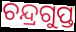
ଚନ୍ଦ୍ରଗୁପ୍ତ